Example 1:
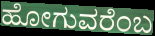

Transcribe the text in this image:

ಹೋಗುವರೆಂಬ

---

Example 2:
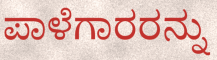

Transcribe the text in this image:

ಪಾಳೆಗಾರರನ್ನು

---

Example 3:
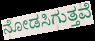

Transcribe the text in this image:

ನೋಡಸಿಗುತ್ತವೆ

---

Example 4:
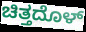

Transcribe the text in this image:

ಚಿತ್ತದೊಳ್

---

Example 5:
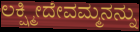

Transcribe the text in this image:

ಲಕ್ಷ್ಮೀದೇವಮ್ಮನನ್ನು